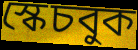
স্কেচবুক